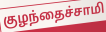
குழந்தைச்சாமி